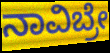
ನಾವಿಬ್ರೇ